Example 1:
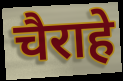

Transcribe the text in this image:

चैराहे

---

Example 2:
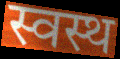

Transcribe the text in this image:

स्वस्थ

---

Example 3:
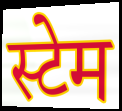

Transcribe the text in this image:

स्टेम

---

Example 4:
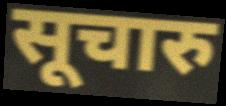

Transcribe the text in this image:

सूचारु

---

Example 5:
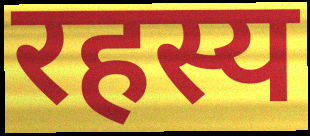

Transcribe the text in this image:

रहस्य